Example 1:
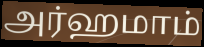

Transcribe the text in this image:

அர்ஹமாம்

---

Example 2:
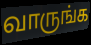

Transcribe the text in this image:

வாருங்க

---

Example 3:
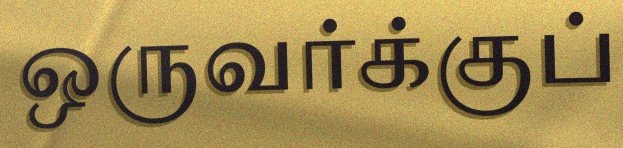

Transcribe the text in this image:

ஒருவர்க்குப்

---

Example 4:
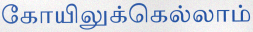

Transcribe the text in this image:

கோயிலுக்கெல்லாம்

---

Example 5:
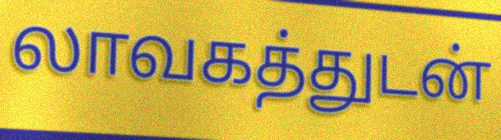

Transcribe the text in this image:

லாவகத்துடன்